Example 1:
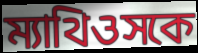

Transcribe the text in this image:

ম্যাথিওসকে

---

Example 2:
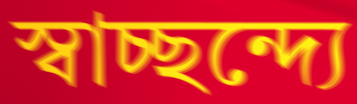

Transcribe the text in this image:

স্বাচ্ছন্দ্যে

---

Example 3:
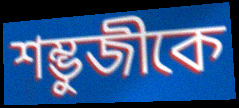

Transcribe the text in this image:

শম্ভুজীকে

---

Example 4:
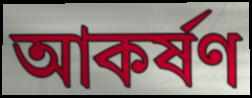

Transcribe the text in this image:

আকর্ষণ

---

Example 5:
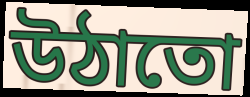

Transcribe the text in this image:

উঠাতো